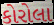
કોરોલા